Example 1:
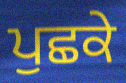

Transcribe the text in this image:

ਪੁਛਕੇ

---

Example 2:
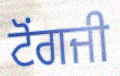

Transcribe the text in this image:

ਟੋਂਗਜੀ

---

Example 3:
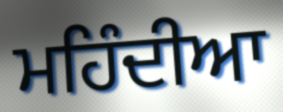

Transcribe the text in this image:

ਮਹਿੰਦੀਆ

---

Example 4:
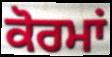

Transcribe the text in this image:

ਕੋਰਮਾਂ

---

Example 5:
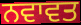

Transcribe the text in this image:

ਨਵਾਵਤ